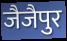
जैजैपुर